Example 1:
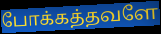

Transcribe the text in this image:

போக்கத்தவளே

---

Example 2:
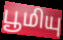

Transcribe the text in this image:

பூமியு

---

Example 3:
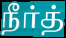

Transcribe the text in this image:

நீர்த்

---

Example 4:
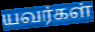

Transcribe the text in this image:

யவர்கள்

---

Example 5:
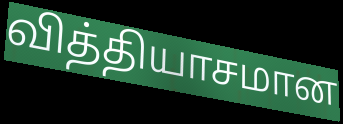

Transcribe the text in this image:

வித்தியாசமான